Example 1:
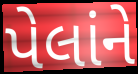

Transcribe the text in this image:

પેલાંને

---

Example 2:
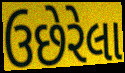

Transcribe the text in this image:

ઉછેરેલા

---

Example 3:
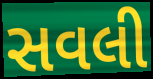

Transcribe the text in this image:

સવલી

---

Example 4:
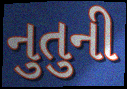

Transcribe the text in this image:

નુતુની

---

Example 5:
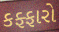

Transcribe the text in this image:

કફ્ફારો